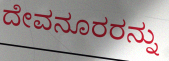
ದೇವನೂರರನ್ನು